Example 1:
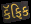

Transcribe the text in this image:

કૅફિક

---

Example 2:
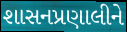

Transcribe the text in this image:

શાસનપ્રણાલીને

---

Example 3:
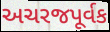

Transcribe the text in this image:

અચરજપૂર્વક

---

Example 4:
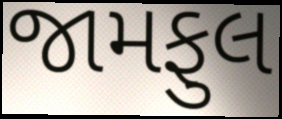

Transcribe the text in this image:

જામફુલ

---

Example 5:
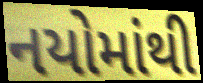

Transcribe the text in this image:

નયોમાંથી